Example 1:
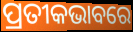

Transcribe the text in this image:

ପ୍ରତୀକଭାବରେ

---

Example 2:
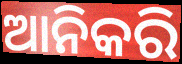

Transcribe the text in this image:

ଆନିକରି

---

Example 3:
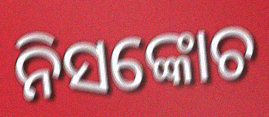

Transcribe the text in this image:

ନିସଙ୍କୋଚ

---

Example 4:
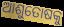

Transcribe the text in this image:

ଆଶୁତୋଷକୁ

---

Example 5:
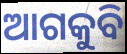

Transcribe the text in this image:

ଆଗକୁବି